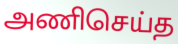
அணிசெய்த